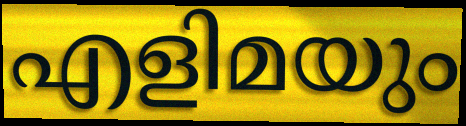
എളിമയും